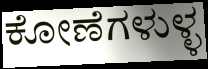
ಕೋಣೆಗಳುಳ್ಳ